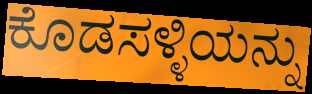
ಕೊಡಸಳ್ಳಿಯನ್ನು